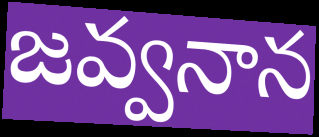
జవ్వనాన